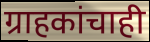
ग्राहकांचाही